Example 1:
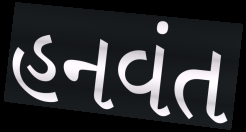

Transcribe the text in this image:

હનવંત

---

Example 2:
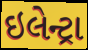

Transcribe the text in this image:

ઇલેન્ટ્રા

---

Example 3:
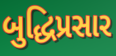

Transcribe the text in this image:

બુદ્ધિપ્રસાર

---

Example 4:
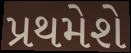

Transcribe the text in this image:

પ્રથમેશે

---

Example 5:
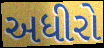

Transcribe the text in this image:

અધીરો